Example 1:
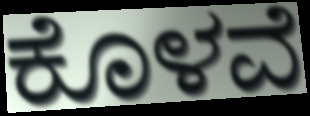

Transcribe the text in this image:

ಕೊಳವೆ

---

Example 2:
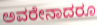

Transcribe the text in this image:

ಅವರೇನಾದರೂ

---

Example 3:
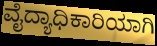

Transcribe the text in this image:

ವೈದ್ಯಾಧಿಕಾರಿಯಾಗಿ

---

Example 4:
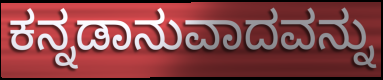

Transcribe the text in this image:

ಕನ್ನಡಾನುವಾದವನ್ನು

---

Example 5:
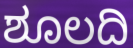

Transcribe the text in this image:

ಶೂಲದಿ